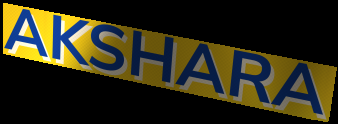
AKSHARA